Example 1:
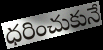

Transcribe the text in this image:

ధరించుకునే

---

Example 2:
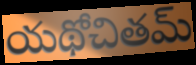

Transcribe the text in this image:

యథోచితమ్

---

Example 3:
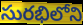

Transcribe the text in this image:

సురభిలోని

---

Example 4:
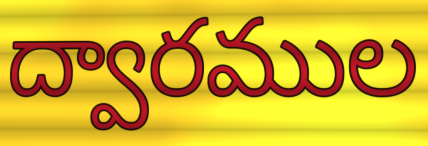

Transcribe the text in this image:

ద్వారముల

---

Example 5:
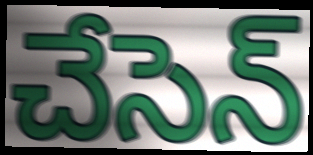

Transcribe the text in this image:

చేసెన్